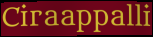
Ciraappalli